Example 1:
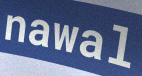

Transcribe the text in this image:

nawal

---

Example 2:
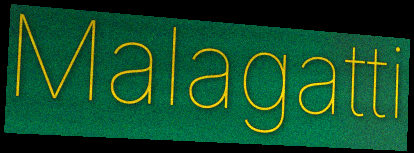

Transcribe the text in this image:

Malagatti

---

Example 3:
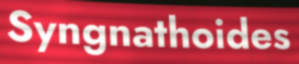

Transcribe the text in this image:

Syngnathoides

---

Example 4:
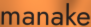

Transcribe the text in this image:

manake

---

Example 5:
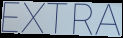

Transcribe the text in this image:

EXTRA